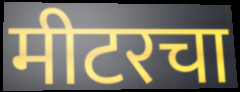
मीटरचा